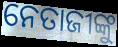
ନେତାଜୀଙ୍କୁ